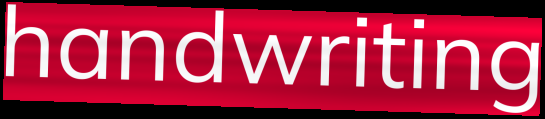
handwriting